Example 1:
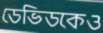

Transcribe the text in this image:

ডেভিডকেও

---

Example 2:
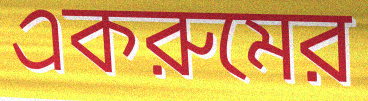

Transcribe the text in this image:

একরুমের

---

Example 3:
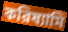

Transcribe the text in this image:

করিষ্যামি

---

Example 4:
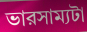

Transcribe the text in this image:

ভারসাম্যটা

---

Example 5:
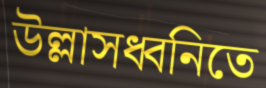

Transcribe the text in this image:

উল্লাসধ্বনিতে